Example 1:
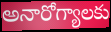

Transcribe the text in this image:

అనారోగ్యాలకు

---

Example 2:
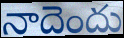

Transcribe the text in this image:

నాదెందు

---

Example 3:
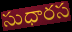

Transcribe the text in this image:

సుధారస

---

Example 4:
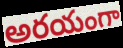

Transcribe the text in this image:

అరయంగా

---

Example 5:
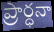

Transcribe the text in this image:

ప్రార్ధనా